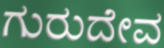
ಗುರುದೇವ